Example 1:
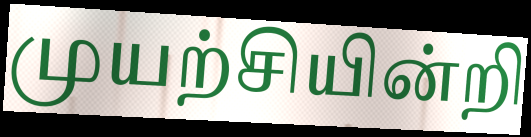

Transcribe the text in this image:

முயற்சியின்றி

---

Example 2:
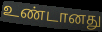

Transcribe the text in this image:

உண்டானது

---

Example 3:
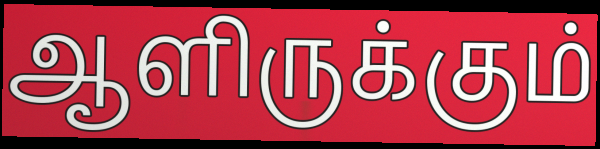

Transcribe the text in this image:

ஆளிருக்கும்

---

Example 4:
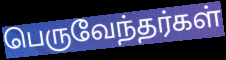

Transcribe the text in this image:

பெருவேந்தர்கள்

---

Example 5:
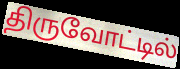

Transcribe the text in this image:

திருவோட்டில்